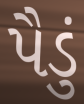
પૈડું